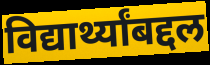
विद्यार्थ्यांबद्दल